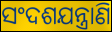
ସଂଦଶଯନ୍ତ୍ରାଣି